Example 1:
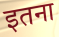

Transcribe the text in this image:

इतना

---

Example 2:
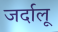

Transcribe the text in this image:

जर्दालू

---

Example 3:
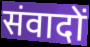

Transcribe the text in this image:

संवादों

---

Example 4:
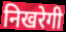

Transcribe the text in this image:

निखरेगी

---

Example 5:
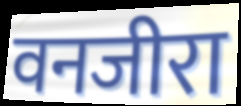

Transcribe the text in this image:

वनजीरा